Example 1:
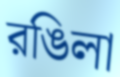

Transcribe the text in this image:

রঙিলা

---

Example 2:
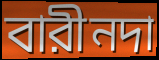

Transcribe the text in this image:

বারীনদা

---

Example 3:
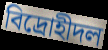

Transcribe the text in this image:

বিদ্রোহীদল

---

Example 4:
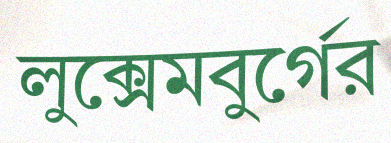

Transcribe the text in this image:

লুক্সেমবুর্গের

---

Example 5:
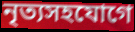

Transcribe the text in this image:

নৃত্যসহযোগে